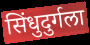
सिंधुदुर्गला